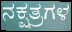
ನಕ್ಷತ್ರಗಳ